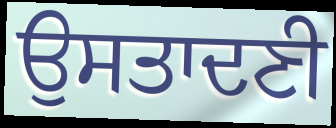
ਉਸਤਾਦਣੀ